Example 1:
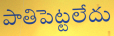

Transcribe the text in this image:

పాతిపెట్టలేదు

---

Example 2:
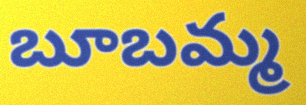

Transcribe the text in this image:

బూబమ్మ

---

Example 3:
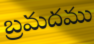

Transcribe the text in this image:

బ్రమదము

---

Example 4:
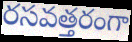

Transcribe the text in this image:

రసవత్తరంగా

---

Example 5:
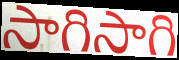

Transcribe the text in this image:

సాగిసాగి